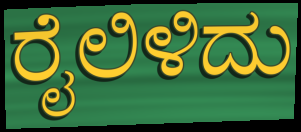
ರೈಲಿಳಿದು